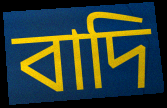
বাদি